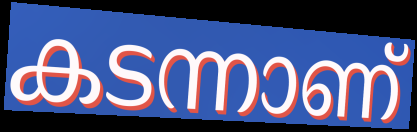
കടന്നാണ്